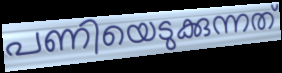
പണിയെടുക്കുന്നത്